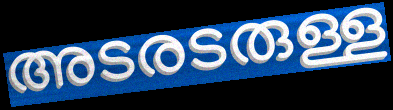
അടരടരുള്ള